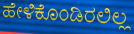
ಹೇಳಿಕೊಂಡಿರಲಿಲ್ಲ